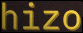
hizo